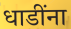
धाडींना